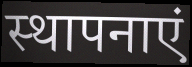
स्थापनाएं